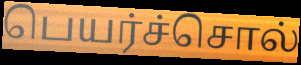
பெயர்ச்சொல்